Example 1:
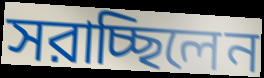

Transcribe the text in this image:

সরাচ্ছিলেন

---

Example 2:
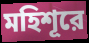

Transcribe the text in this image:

মহিশূরে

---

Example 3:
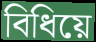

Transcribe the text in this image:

বিধিয়ে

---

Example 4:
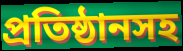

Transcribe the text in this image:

প্রতিষ্ঠানসহ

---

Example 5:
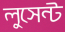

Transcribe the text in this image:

লুসেন্ট